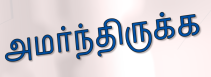
அமர்ந்திருக்க